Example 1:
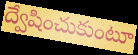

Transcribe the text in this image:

ద్వేషించుకుంటూ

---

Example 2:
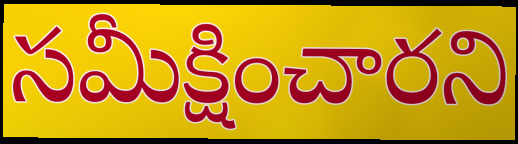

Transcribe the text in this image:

సమీక్షించారని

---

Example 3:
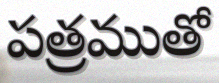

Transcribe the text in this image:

పత్రముతో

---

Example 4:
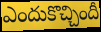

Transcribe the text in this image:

ఎందుకొచ్చిందీ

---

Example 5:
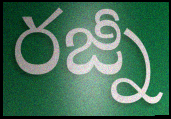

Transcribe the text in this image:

రజ్నీ